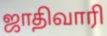
ஜாதிவாரி